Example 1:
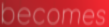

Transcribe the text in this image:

becomes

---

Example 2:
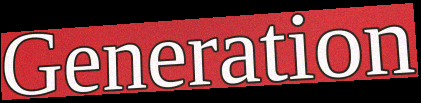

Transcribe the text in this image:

Generation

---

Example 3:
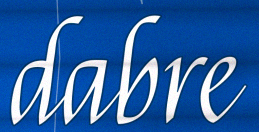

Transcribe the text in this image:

dabre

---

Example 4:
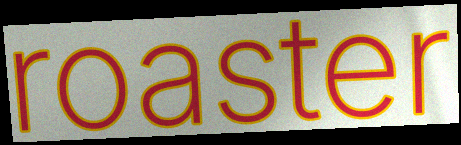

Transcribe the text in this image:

roaster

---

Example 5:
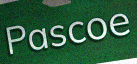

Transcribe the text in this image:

Pascoe